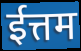
ईत्तम